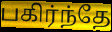
பகிர்ந்தே